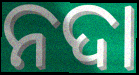
ନଦା